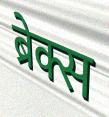
ब्रेक्स